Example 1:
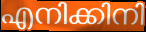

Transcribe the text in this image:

എനിക്കിനി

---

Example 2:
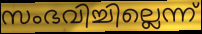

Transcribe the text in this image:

സംഭവിച്ചില്ലെന്ന്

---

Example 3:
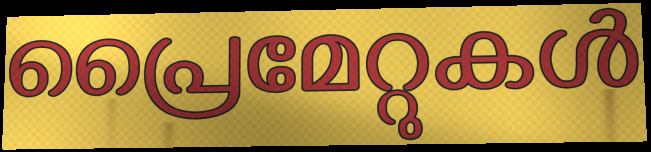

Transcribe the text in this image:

പ്രൈമേറ്റുകൾ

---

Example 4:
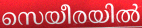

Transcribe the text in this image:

സെയീരയിൽ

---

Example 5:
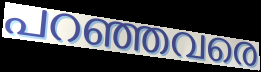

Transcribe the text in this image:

പറഞ്ഞവരെ